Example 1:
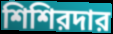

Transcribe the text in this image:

শিশিরদার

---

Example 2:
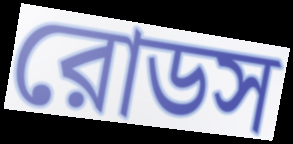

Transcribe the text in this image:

রোডস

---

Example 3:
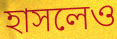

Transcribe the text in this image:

হাসলেও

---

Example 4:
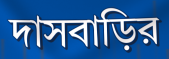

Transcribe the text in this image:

দাসবাড়ির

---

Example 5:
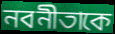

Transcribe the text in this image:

নবনীতাকে